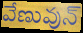
వేణువున్